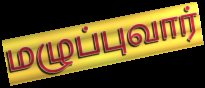
மழுப்புவார்